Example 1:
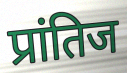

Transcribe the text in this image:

प्रांतिज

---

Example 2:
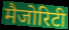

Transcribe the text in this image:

मैजोरिटी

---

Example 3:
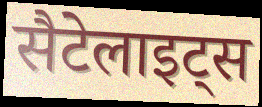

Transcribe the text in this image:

सैटेलाइट्स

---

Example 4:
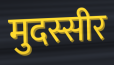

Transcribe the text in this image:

मुदस्सीर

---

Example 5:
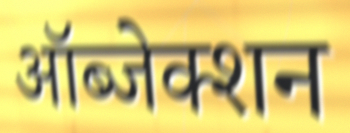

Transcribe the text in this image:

ऑब्जेक्शन